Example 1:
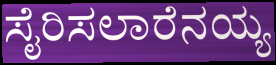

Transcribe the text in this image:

ಸೈರಿಸಲಾರೆನಯ್ಯ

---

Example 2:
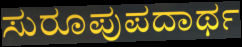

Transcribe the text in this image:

ಸುರೂಪುಪದಾರ್ಥ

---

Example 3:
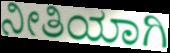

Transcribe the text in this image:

ನೀತಿಯಾಗಿ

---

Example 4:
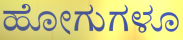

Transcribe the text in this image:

ಹೋಗುಗಳೂ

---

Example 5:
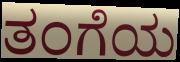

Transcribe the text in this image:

ತಂಗೆಯ